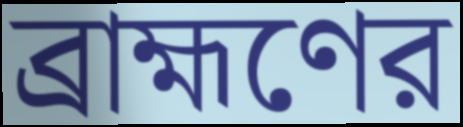
ব্রাহ্মণের